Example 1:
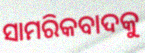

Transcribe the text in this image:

ସାମରିକବାଦକୁ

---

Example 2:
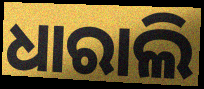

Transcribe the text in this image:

ଧାରାଲି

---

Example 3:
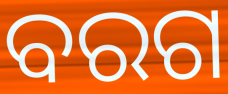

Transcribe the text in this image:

ବରଗ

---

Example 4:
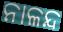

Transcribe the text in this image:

ନାଳନ୍ଦ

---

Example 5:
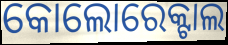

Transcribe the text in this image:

କୋଲୋରେକ୍ଟାଲ